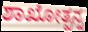
ಶಾಖೋತ್ಪನ್ನ